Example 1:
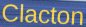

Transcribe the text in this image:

Clacton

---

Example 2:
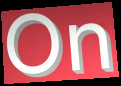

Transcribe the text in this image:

On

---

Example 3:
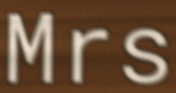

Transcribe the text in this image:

Mrs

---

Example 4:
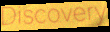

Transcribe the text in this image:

Discovery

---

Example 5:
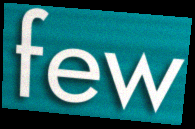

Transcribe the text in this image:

few